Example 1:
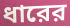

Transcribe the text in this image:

ধারের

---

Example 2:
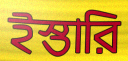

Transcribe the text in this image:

ইস্তারি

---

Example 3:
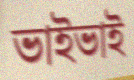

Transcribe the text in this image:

ভাইভাই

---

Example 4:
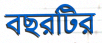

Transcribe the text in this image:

বছরটির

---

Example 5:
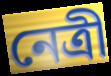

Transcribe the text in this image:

নেত্রী